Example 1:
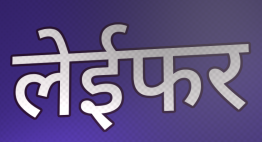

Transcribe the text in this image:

लेईफर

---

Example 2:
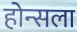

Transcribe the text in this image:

होन्सला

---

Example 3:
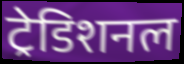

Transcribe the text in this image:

ट्रेडिशनल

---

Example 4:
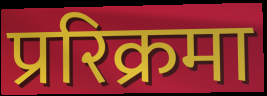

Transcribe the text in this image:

प्ररिक्रमा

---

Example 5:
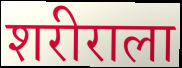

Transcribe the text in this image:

शरीराला